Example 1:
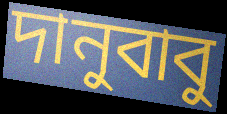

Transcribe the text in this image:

দানুবাবু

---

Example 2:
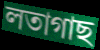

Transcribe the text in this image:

লতাগাছ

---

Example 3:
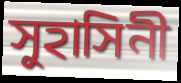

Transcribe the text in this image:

সুহাসিনী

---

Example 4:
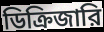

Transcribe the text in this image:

ডিক্রিজারি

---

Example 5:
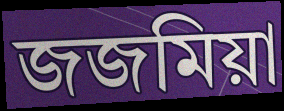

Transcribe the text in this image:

জজমিয়া